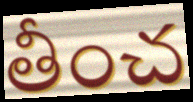
తీంచ